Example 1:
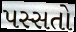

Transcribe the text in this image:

પસ્સતો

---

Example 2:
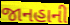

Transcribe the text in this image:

જાનહાની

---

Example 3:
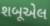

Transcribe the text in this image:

શબૂએલ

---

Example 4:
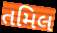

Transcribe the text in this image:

તમિલ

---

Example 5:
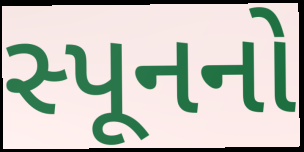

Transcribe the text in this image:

સ્પૂનનો